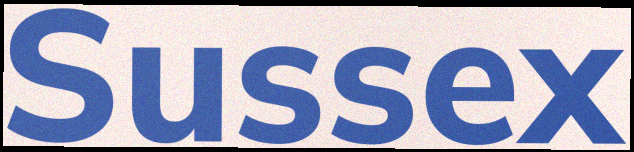
Sussex